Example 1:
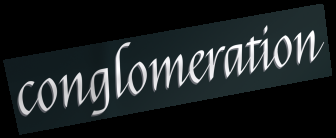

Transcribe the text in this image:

conglomeration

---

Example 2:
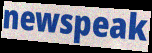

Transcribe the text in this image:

newspeak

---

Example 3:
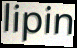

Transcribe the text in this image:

lipin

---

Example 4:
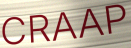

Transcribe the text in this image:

CRAAP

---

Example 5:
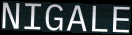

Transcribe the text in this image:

NIGALE